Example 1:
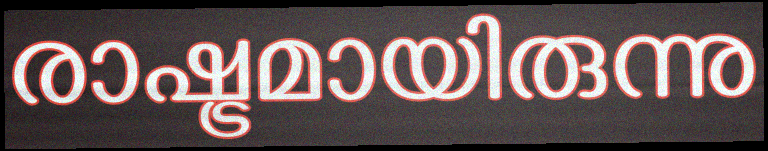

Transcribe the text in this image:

രാഷ്ട്രമായിരുന്നു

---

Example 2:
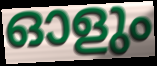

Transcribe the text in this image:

ഓളും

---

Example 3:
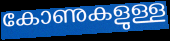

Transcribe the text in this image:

കോണുകളുള്ള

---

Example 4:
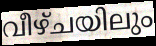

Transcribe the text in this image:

വീഴ്ചയിലും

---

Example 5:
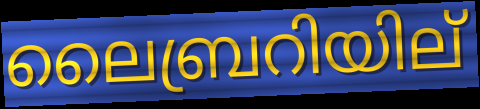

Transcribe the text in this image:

ലൈബ്രറിയില്